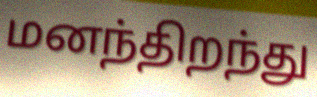
மனந்திறந்து